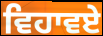
ਵਿਹਾਵਏ